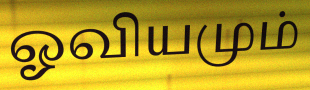
ஓவியமும்